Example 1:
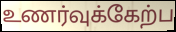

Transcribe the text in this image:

உணர்வுக்கேற்ப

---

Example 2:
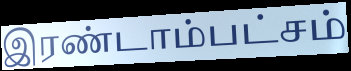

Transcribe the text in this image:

இரண்டாம்பட்சம்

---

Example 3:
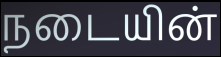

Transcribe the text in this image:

நடையின்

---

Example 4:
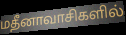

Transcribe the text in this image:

மதீனாவாசிகளில்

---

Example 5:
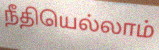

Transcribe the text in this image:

நீதியெல்லாம்